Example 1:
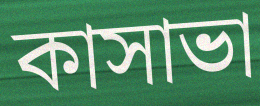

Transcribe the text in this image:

কাসাভা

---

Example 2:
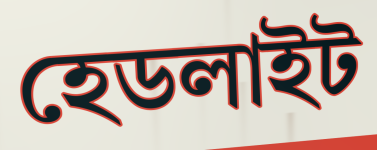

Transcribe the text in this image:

হেডলাইট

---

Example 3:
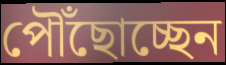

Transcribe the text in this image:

পৌঁছোচ্ছেন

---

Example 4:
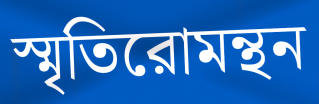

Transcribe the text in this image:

স্মৃতিরোমন্থন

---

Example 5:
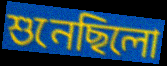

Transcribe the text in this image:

শুনেছিলো